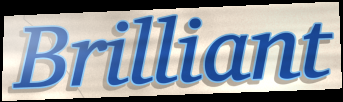
Brilliant